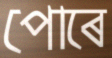
পোৰে